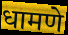
धामणे